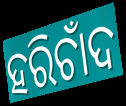
ହରିଚାଁଦ